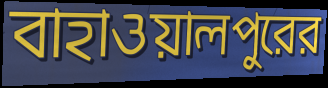
বাহাওয়ালপুরের